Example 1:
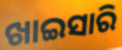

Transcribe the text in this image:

ଖାଇସାରି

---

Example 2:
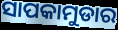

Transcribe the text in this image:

ସାପକାମୁଡାର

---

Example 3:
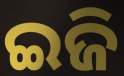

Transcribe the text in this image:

ଇଜି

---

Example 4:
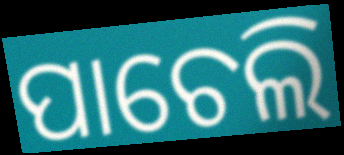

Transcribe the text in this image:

ପାଚେଲି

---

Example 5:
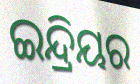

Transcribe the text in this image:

ଇନ୍ଦ୍ରିୟର